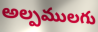
అల్పములగు